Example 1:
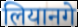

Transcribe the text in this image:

लियानगे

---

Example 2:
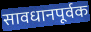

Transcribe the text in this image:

सावधानपूर्वक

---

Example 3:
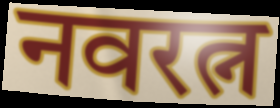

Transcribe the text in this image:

नवरत्न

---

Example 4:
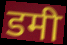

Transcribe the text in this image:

डमी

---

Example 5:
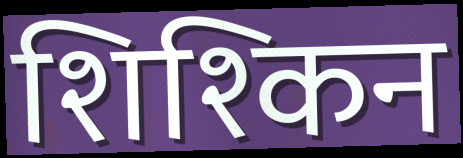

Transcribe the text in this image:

शिश्किन